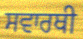
ਸਵਾਰਥੀ